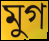
মুগ